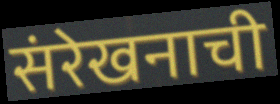
संरेखनाची